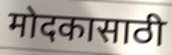
मोदकासाठी